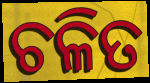
ଚଳିତ